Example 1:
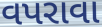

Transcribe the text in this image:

વપરાવા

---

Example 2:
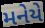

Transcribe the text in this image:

મનેયે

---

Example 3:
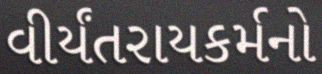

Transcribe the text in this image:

વીર્યંતરાયકર્મનો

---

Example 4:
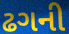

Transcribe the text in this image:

ઢગની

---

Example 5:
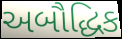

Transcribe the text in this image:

અબૌદ્ધિક